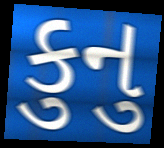
કુનુ